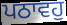
ਪਠਾਵਹੁ